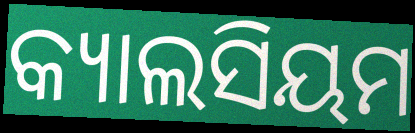
କ୍ୟାଲସିୟମ